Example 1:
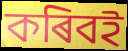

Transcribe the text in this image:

কৰিবই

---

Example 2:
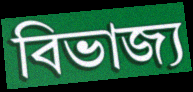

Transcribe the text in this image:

বিভাজ্য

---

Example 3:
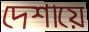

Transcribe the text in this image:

দেশায়ে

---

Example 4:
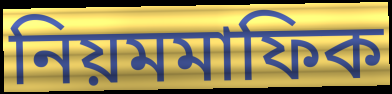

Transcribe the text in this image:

নিয়মমাফিক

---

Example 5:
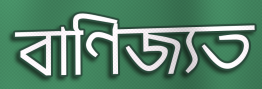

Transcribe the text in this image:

বাণিজ্যত